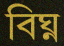
বিঘ্ন